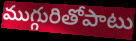
ముగ్గురితోపాటు